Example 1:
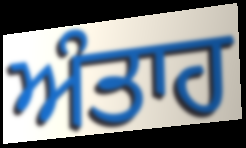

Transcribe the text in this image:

ਅੰਤਾਹ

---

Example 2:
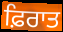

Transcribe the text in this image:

ਫ਼ਿਰਾਤ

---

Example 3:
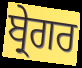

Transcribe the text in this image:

ਬ੍ਰੇਗਰ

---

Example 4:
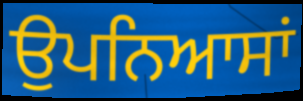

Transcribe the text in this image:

ਉਪਨਿਆਸਾਂ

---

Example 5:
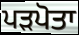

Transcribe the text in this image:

ਪੜਪੋਤਾ